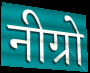
नीग्रो